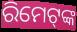
ରିମେଟ୍‍ଙ୍କ